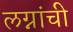
लग्नांची